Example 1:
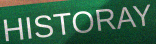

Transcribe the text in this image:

HISTORAY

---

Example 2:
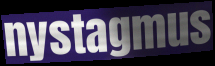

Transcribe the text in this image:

nystagmus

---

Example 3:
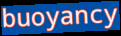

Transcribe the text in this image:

buoyancy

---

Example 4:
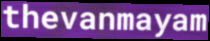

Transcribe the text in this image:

thevanmayam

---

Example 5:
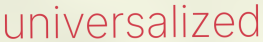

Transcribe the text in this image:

universalized